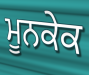
ਮੂਨਕੇਕ